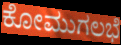
ಕೋಮುಗಲಭೆ